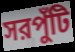
সরপুঁটি